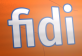
fidi